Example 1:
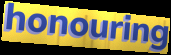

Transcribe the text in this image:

honouring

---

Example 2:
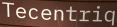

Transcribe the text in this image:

Tecentriq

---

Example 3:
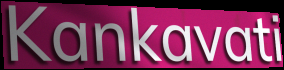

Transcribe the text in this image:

Kankavati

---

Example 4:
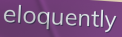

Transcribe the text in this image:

eloquently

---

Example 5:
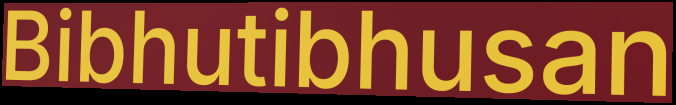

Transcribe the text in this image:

Bibhutibhusan